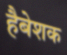
हैबेशक